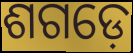
ଶଗଡ଼େ